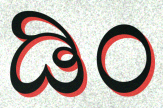
ಡಿಂ